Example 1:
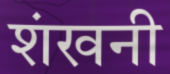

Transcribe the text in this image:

शंखनी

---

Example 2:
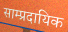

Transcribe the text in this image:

साम्प्रदायिक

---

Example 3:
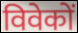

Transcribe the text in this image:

विवेकों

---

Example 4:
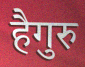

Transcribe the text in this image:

हैगुरु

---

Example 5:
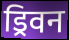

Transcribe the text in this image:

ड्रिवन